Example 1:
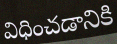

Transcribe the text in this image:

విధించడానికి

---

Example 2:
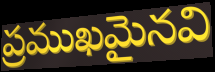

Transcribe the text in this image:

ప్రముఖమైనవి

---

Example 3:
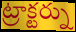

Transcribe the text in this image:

ట్రాక్టర్ను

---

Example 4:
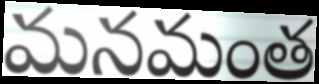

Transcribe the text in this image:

మనమంత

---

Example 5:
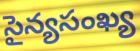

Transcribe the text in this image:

సైన్యసంఖ్య